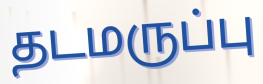
தடமருப்பு